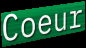
Coeur